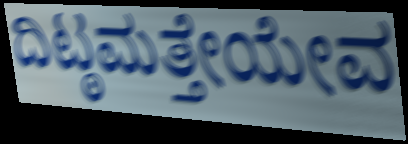
ದಿಟ್ಠಮತ್ತೇಯೇವ